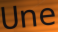
Une